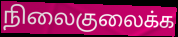
நிலைகுலைக்க